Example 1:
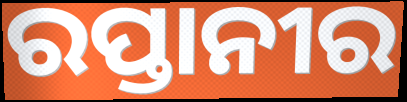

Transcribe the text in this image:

ରପ୍ତାନୀର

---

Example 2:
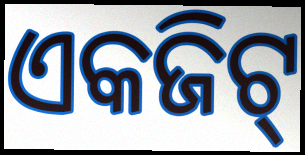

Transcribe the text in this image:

ଏକଜିଟ୍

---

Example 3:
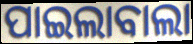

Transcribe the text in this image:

ପାଇଲାବାଲା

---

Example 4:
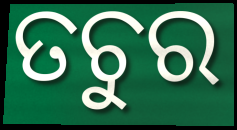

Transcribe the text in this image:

ତଚୁର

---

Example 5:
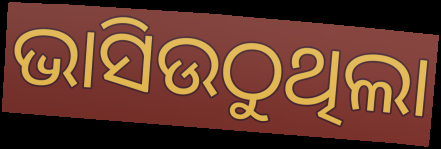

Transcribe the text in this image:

ଭାସିଉଠୁଥିଲା